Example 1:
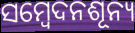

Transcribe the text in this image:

ସମ୍ବେଦନଶୂନ୍ୟ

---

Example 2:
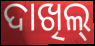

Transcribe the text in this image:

ଦାଖିଲ୍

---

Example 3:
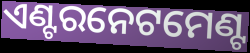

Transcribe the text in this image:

ଏଣ୍ଟରନେଟମେଣ୍ଟ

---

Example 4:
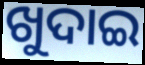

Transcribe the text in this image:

ଖୁଦାଇ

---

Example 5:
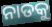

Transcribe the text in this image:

ନାଡକୁ